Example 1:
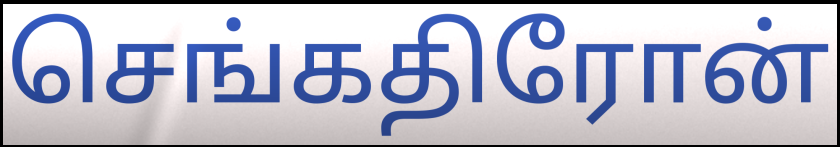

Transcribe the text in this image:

செங்கதிரோன்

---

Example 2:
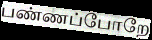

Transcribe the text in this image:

பண்ணப்போறே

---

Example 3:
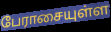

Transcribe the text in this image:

பேராசையுள்ள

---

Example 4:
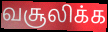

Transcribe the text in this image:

வசூலிக்க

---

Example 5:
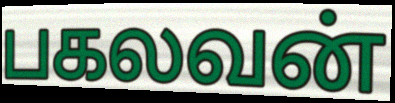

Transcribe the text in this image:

பகலவன்